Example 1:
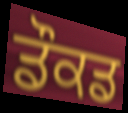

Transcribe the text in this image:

ਡੌਕਡ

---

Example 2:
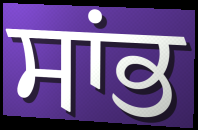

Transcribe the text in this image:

ਸਾਂਭ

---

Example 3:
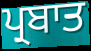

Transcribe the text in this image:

ਪ੍ਰਬਾਤ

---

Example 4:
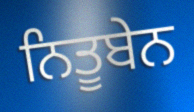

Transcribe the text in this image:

ਨਿਤੂਬੇਨ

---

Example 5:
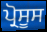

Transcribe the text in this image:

ਪ੍ਰੋਸੂਸ